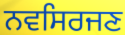
ਨਵਸਿਰਜਣ